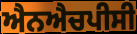
ਐਨਐਚਪੀਸੀ